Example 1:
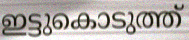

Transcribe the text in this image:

ഇട്ടുകൊടുത്ത്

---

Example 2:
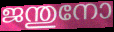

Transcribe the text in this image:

ജന്തുനോ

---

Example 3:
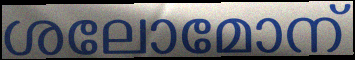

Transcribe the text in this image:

ശലോമോന്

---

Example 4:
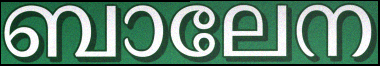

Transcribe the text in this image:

ബാലേന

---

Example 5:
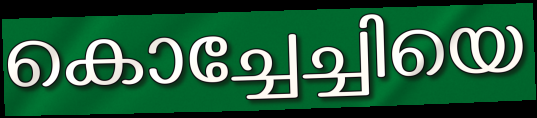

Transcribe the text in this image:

കൊച്ചേച്ചിയെ